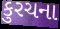
કુરચના